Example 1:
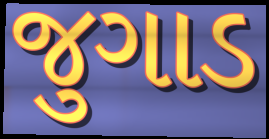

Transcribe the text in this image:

જુગાડ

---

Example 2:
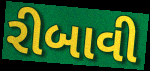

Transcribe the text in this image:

રીબાવી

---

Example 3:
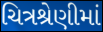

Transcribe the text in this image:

ચિત્રશ્રેણીમાં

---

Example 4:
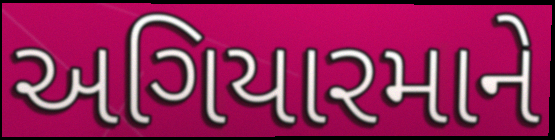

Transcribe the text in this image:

અગિયારમાને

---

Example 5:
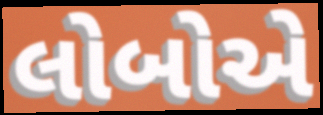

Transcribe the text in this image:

લોબોએ